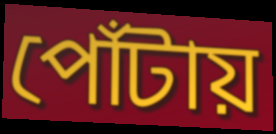
পোঁটায়